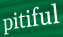
pitiful